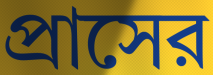
প্রাসের